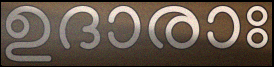
ഉദാരാഃ